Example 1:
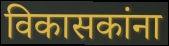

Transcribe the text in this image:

विकासकांना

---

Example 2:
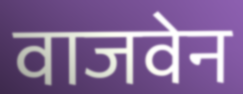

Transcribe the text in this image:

वाजवेन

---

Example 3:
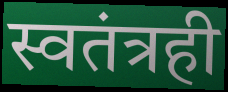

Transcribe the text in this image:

स्वतंत्रही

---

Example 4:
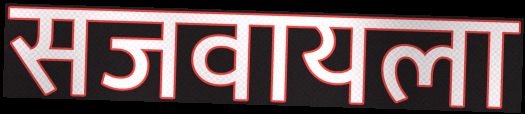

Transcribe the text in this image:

सजवायला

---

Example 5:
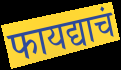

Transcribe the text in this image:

फायद्याचं